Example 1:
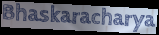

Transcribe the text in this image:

Bhaskaracharya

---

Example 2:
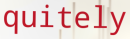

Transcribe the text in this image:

quitely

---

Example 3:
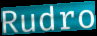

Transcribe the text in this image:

Rudro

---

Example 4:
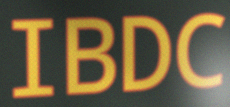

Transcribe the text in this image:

IBDC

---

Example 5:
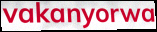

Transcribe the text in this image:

vakanyorwa